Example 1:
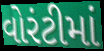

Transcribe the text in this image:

વોરંટીમાં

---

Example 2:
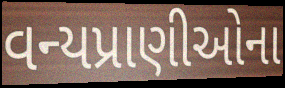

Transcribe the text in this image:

વન્યપ્રાણીઓના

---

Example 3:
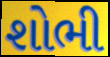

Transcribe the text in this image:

શોભી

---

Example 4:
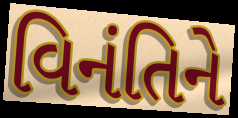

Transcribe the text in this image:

વિનંતિને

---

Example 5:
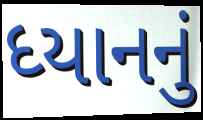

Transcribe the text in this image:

ધ્યાનનું